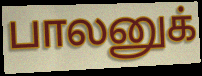
பாலனுக்